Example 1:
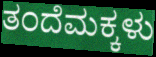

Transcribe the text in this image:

ತಂದೆಮಕ್ಕಳು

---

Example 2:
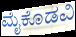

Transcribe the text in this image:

ಮೈಕೊಡವಿ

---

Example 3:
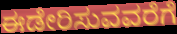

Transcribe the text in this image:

ಈಡೇರಿಸುವವರೆಗೆ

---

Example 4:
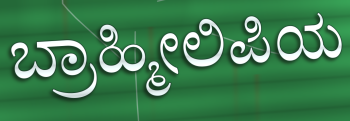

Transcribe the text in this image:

ಬ್ರಾಹ್ಮೀಲಿಪಿಯ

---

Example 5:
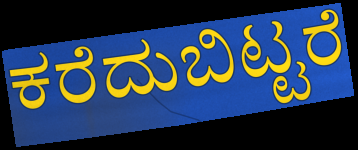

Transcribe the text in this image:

ಕರೆದುಬಿಟ್ಟರೆ